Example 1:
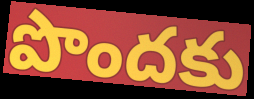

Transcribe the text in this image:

పొందకు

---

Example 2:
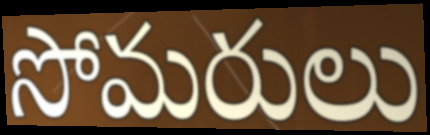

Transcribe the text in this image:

సోమరులు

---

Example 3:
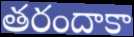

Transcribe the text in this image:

తరందాకా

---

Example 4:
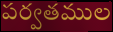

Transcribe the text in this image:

పర్వతముల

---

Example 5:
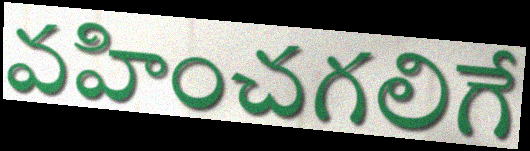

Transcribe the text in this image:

వహించగలిగే